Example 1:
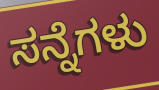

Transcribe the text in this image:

ಸನ್ನೆಗಳು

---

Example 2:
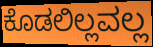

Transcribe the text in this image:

ಕೊಡಲಿಲ್ಲವಲ್ಲ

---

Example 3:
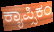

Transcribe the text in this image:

ಕ್ಯಾಪ್ಸಿಕಂ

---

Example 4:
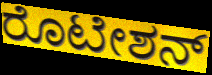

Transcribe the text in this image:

ರೊಟೇಶನ್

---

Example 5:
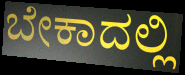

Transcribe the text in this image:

ಬೇಕಾದಲ್ಲಿ